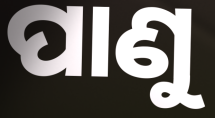
ପାଣୁ